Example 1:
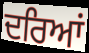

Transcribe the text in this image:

ਦਰਿਆਂ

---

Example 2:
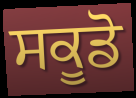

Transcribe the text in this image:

ਸਕੂਡੋ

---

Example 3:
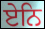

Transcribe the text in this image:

ਏਨਿ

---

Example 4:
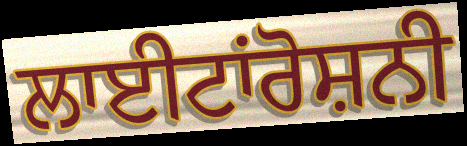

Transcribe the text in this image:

ਲਾਈਟਾਂਰੋਸ਼ਨੀ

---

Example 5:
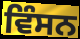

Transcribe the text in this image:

ਵਿੰਸਨ